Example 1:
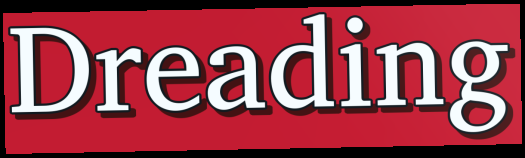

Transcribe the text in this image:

Dreading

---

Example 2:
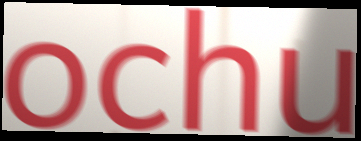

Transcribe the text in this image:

ochu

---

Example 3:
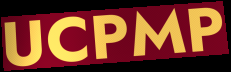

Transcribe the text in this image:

UCPMP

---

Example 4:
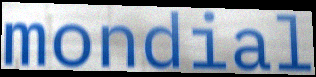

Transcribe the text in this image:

mondial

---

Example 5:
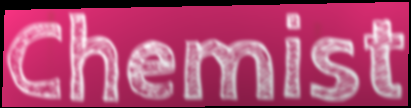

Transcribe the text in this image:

Chemist